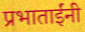
प्रभाताईंनी